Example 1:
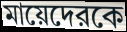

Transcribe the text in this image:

মায়েদেরকে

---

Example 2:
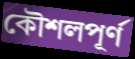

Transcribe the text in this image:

কৌশলপূর্ণ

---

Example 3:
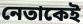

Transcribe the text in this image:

নেতাকেই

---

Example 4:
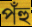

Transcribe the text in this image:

পঁহু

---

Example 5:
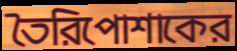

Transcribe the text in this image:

তৈরিপোশাকের